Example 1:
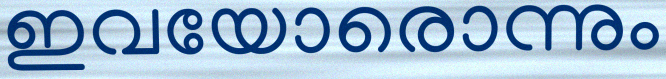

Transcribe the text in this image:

ഇവയോരൊന്നും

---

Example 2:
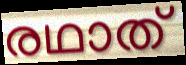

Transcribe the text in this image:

രഥാത്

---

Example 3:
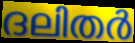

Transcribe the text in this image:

ദലിതർ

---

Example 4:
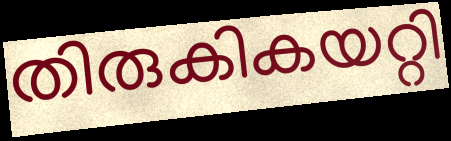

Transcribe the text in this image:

തിരുകികയറ്റി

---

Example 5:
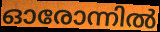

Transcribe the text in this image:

ഓരോന്നിൽ